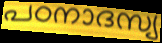
പഠനാദസ്യ